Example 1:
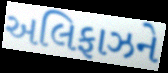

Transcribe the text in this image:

અલિફાઝને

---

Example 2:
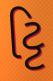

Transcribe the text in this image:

ટ્ટિ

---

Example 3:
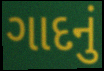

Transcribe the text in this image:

ગાદનું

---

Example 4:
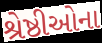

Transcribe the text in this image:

શ્રેષ્ઠીઓના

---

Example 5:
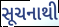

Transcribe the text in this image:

સૂચનાથી